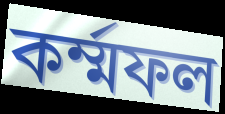
কর্ম্মফল